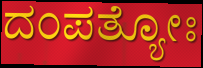
ದಂಪತ್ಯೋಃ